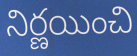
నిర్ణయించి